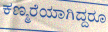
ಕಣ್ಮರೆಯಾಗಿದ್ದರೂ